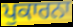
ਪੁਕਾਰਨਾ